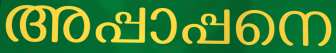
അപ്പാപ്പനെ